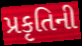
પ્રકૃતિની